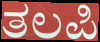
ತಲಪಿ